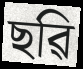
ছৱি